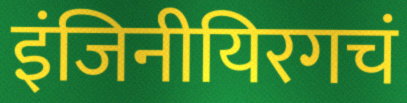
इंजिनीयिरगचं